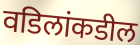
वडिलांकडील